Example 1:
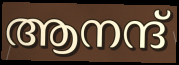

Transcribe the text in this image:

ആനന്ദ്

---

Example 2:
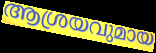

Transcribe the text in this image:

ആശ്രയവുമായ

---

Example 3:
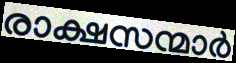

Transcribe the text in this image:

രാക്ഷസന്മാർ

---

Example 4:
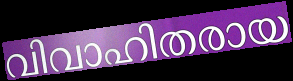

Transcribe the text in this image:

വിവാഹിതരായ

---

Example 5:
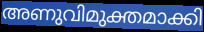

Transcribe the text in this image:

അണുവിമുക്തമാക്കി